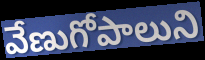
వేణుగోపాలుని